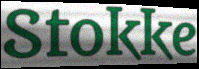
Stokke